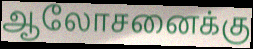
ஆலோசனைக்கு